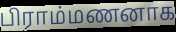
பிராம்மணனாக